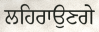
ਲਹਿਰਾਉਣਗੇ